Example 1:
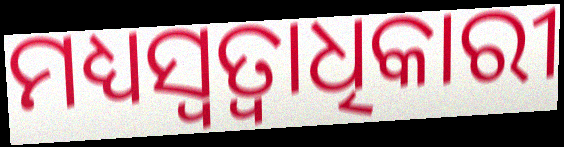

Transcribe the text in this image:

ମଧ୍ୟସ୍ୱତ୍ୱାଧିକାରୀ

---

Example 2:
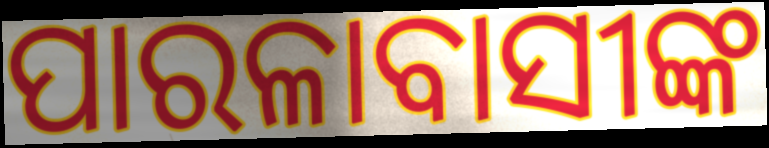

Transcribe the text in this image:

ପାରଳାବାସୀଙ୍କ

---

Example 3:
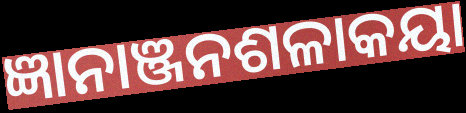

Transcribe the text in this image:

ଜ୍ଞାନାଞ୍ଜନଶଳାକୟା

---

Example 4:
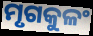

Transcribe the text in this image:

ମୃଗକୁଳଂ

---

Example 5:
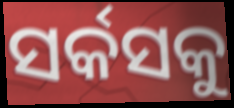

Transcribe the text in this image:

ସର୍କସକୁ